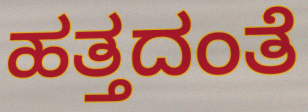
ಹತ್ತದಂತೆ